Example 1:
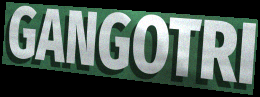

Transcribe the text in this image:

GANGOTRI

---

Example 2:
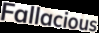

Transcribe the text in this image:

Fallacious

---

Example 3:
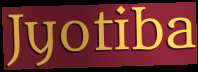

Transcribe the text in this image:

Jyotiba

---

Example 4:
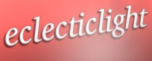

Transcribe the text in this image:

eclecticlight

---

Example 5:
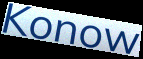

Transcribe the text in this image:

Konow